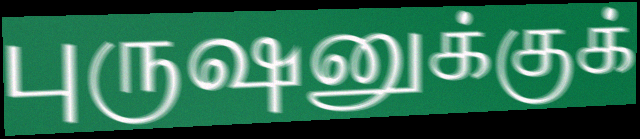
புருஷனுக்குக்